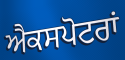
ਐਕਸਪੋਟਰਾਂ